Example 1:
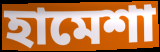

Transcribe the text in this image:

হামেশা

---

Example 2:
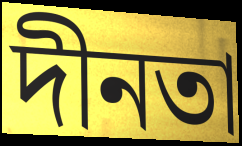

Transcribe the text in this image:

দীনতা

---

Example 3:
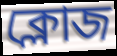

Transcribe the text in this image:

ক্লোজ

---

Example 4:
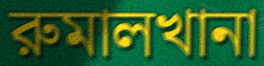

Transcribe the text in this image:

রুমালখানা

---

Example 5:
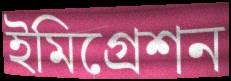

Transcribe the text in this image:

ইমিগ্রেশন